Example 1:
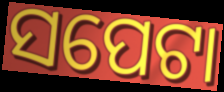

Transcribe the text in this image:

ସପେଟା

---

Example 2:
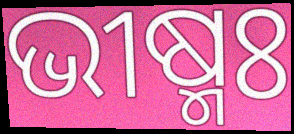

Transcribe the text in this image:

ଭୀଷ୍ମଃ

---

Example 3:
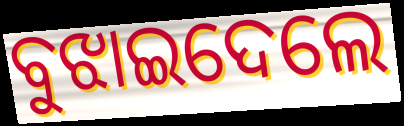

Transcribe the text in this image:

ବୁଝାଇଦେଲେ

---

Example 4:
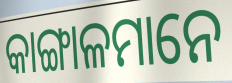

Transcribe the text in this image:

କାଙ୍ଗାଳମାନେ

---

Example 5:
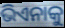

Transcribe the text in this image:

ଭିଏନାକୁ